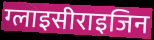
ग्लाइसीराइजिन